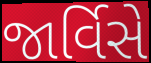
જાર્વિસે